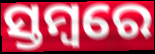
ସ୍ତମ୍ବରେ